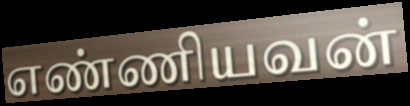
எண்ணியவன்